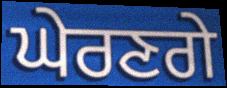
ਘੇਰਣਗੇ